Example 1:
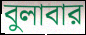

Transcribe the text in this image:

বুলাবার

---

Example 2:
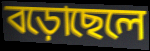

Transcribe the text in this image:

বড়োছেলে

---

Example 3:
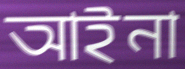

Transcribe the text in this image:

আইনা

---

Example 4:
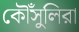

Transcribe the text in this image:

কৌঁসুলিরা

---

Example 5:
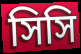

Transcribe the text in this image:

সিসি